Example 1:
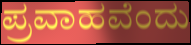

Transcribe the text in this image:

ಪ್ರವಾಹವೆಂದು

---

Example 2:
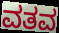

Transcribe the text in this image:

ವತವ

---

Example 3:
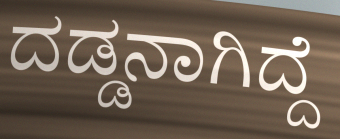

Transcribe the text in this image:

ದಡ್ಡನಾಗಿದ್ದೆ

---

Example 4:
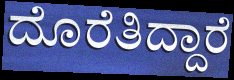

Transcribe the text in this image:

ದೊರೆತಿದ್ದಾರೆ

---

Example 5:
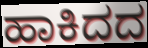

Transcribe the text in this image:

ಹಾಕಿದದ